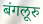
बंगलूरु